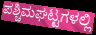
ಪಶ್ಚಿಮಘಟ್ಟಗಳಲ್ಲಿ